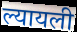
ल्यायली